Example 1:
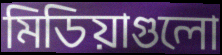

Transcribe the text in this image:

মিডিয়াগুলো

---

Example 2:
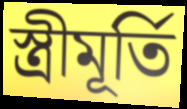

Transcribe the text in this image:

স্ত্রীমূর্তি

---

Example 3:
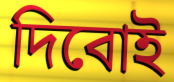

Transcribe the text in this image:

দিবোই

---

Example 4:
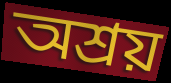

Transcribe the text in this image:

অশ্রয়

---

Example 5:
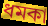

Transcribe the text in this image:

ধমকা